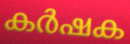
കർഷക